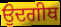
ਉਦਗੀਥ